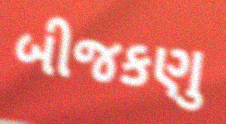
બીજકણુ